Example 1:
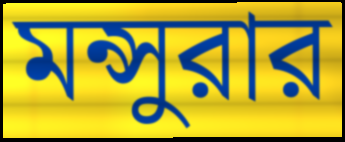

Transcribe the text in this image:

মন্সুরার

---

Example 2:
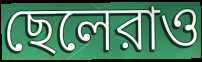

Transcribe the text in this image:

ছেলেরাও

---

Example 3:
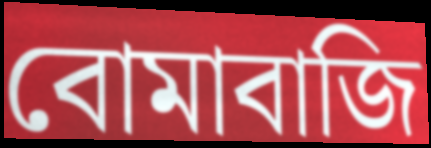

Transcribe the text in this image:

বোমাবাজি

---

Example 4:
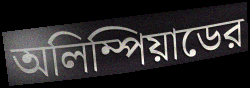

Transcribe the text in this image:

অলিম্পিয়াডের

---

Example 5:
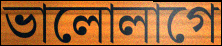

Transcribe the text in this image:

ভালোলাগে